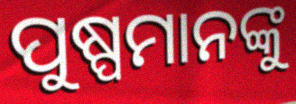
ପୁଷ୍ପମାନଙ୍କୁ